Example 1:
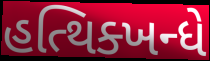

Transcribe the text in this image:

હત્થિક્ખન્ધે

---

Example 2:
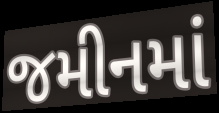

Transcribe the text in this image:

જમીનમાં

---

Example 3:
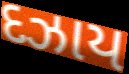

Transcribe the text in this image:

દઝાય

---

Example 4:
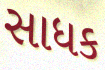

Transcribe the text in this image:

સાધક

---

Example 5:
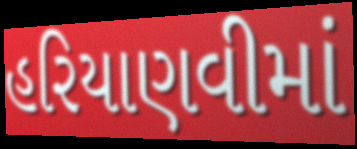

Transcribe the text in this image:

હરિયાણવીમાં